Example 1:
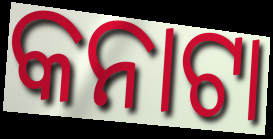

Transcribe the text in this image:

କନାଟା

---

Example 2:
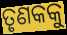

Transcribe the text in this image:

ତୃଣକକୁ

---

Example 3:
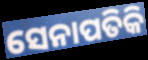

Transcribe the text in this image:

ସେନାପତିକି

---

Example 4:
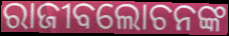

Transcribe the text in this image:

ରାଜୀବଲୋଚନଙ୍କ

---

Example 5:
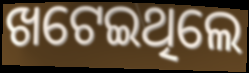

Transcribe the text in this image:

ଖଟେଇଥିଲେ